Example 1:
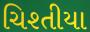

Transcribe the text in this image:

ચિશ્તીયા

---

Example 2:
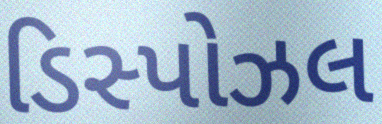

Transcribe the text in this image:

ડિસ્પોઝલ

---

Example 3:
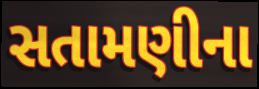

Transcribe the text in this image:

સતામણીના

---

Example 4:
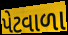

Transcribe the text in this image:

પેટવાળા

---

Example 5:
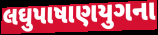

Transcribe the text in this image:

લઘુપાષાણયુગના